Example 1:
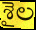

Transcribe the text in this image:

శైల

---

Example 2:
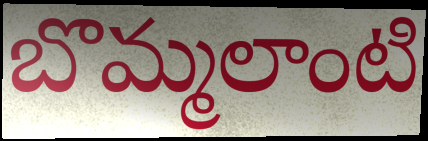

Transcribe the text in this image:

బొమ్మలాంటి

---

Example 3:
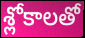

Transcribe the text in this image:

శ్లోకాలతో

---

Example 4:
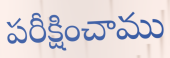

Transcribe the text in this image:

పరీక్షించాము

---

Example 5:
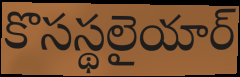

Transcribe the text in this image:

కొసస్థలైయార్